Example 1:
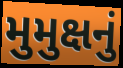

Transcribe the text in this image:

મુમુક્ષનું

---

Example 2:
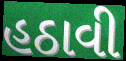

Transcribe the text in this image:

હઠાવી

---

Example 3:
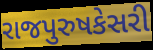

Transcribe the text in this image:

રાજપુરુષકેસરી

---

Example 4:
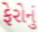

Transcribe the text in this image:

ફેરોનું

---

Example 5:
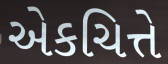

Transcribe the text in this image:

એકચિત્તે